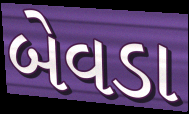
બેવડા